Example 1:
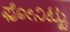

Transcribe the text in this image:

ಫೋನಿಟ್ಟು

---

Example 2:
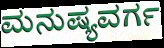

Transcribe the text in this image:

ಮನುಷ್ಯವರ್ಗ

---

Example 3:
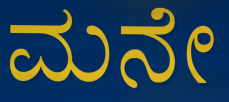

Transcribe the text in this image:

ಮನೇ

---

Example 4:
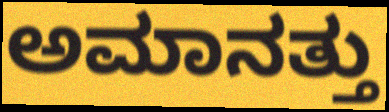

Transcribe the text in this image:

ಅಮಾನತ್ತು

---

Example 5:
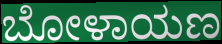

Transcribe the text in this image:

ಬೋಳಾಯಣ